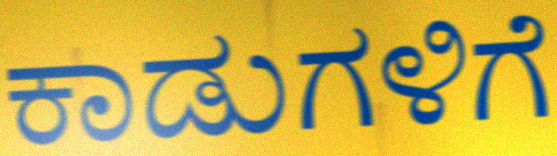
ಕಾಡುಗಳಿಗೆ